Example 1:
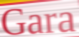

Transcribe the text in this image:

Gara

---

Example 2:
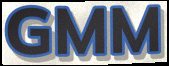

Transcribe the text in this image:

GMM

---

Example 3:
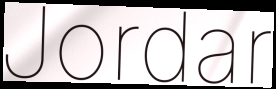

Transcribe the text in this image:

Jordar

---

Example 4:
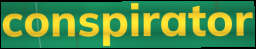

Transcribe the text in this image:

conspirator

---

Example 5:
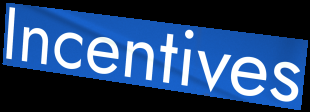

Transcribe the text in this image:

Incentives